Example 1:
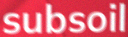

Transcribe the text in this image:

subsoil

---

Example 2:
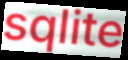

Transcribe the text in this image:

sqlite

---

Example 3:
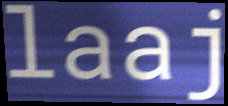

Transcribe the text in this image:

laaj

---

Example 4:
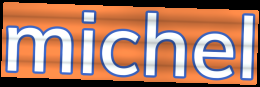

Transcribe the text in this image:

michel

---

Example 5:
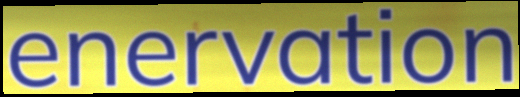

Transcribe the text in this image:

enervation